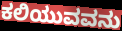
ಕಲಿಯುವವನು